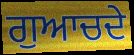
ਗੁਆਚਦੇ